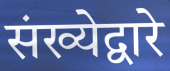
संख्येद्वारे